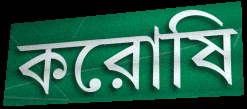
করোষি